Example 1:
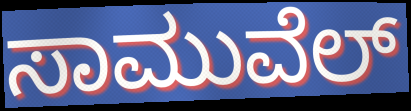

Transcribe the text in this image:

ಸಾಮುವೆಲ್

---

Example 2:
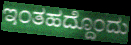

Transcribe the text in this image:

ಇಂತಹದ್ದೊಂದು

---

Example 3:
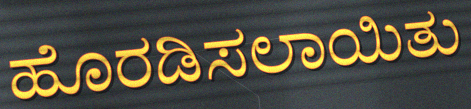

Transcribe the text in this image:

ಹೊರಡಿಸಲಾಯಿತು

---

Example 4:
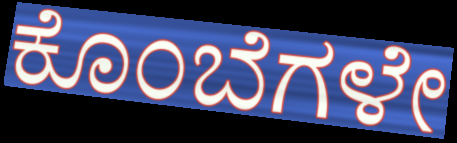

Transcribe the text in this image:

ಕೊಂಬೆಗಳೇ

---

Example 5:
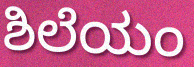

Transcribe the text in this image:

ಶಿಲೆಯಂ